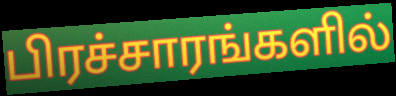
பிரச்சாரங்களில்